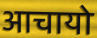
आचायो